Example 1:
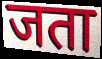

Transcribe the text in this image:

जता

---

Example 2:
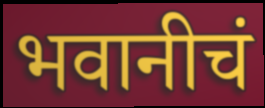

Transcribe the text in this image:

भवानीचं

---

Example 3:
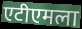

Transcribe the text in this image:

एटीएमला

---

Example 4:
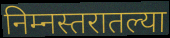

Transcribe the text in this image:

निम्नस्तरातल्या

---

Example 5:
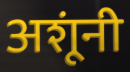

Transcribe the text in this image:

अश्रूंनी